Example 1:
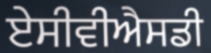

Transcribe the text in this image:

ਏਸੀਵੀਐਸਡੀ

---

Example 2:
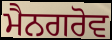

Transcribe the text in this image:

ਮੈਨਗਰੋਵ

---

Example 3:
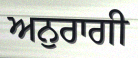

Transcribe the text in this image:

ਅਨੁਰਾਗੀ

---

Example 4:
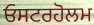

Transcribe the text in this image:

ਓਸਟਰਹੋਲਮ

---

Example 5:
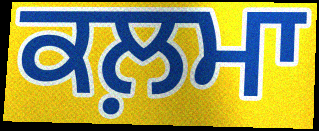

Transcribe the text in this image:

ਕਲ਼ਮਾ